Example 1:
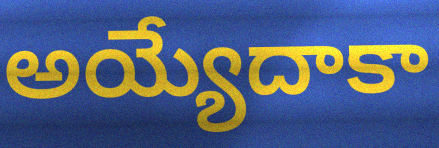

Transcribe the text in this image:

అయ్యేదాకా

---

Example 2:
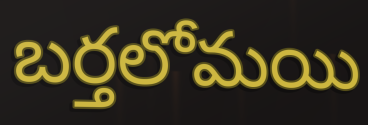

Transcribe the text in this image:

బర్తలోమయి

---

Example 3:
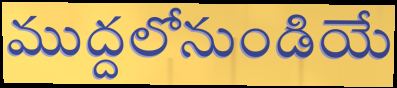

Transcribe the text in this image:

ముద్దలోనుండియే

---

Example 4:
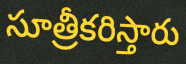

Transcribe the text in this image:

సూత్రీకరిస్తారు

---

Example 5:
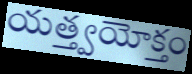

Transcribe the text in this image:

యత్త్వయోక్తం